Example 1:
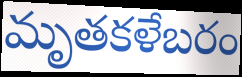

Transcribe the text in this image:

మృతకళేబరం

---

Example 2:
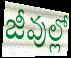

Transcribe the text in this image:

జీవుల్లో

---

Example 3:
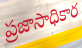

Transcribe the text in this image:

ప్రజాసాధికార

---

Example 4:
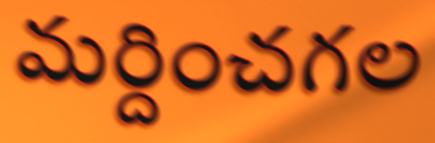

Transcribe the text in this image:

మర్దించగల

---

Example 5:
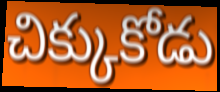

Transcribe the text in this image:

చిక్కుకోడు